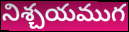
నిశ్చయముగ